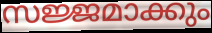
സജ്ജമാക്കും